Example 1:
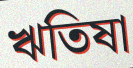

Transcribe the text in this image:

ঋতিষা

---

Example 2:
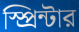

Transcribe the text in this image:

স্প্রিন্টার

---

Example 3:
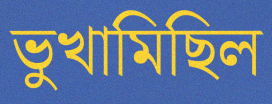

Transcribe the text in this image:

ভুখামিছিল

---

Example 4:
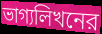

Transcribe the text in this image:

ভাগ্যলিখনের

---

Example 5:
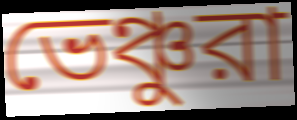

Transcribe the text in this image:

ভেঞ্চুরা